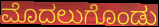
ಮೊದಲುಗೊಂಡು